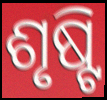
ଶୃଷ୍ଟି